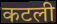
कटली